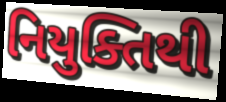
નિયુક્તિથી